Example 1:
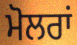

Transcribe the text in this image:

ਮੋਲਰਾਂ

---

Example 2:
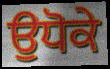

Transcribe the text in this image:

ਉਧੋਕੇ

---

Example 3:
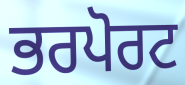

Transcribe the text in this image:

ਭਰਪੋਰਟ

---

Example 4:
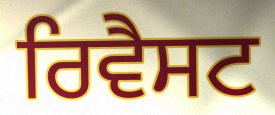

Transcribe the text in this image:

ਰਿਵੈਸਟ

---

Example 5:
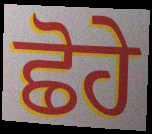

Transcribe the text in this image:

ਛੋਹੇ